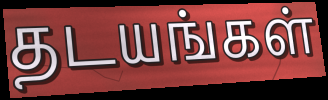
தடயங்கள்